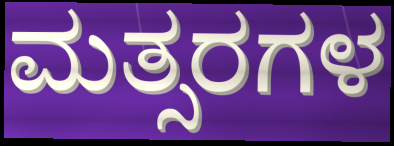
ಮತ್ಸರಗಳ